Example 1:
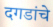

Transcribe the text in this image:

दगडांचे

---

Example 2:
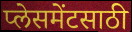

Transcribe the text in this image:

प्लेसमेंटसाठी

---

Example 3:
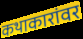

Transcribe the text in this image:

कथाकारांवर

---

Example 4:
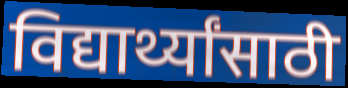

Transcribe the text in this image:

विद्यार्थ्यांसाठी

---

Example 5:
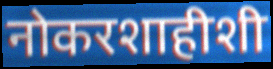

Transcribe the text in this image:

नोकरशाहीशी